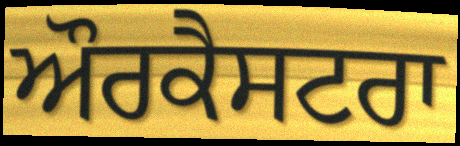
ਔਰਕੈਸਟਰਾ